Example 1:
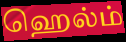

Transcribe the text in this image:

ஹெல்ம்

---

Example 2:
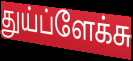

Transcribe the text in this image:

துய்ப்ளேக்சு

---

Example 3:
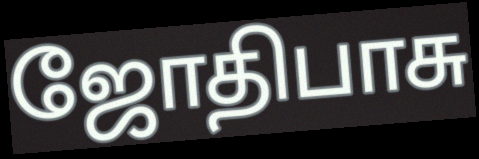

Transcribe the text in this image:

ஜோதிபாசு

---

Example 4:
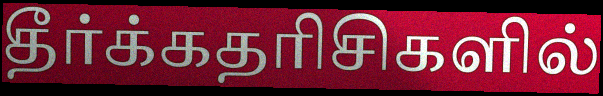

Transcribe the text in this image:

தீர்க்கதரிசிகளில்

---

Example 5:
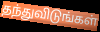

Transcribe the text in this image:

தந்துவிடுங்கள்